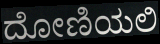
ದೋಣಿಯಲಿ